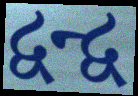
દ્વન્દ્વ